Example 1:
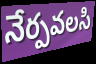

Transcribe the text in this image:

నేర్పవలసి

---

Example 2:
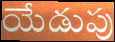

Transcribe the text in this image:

యేడుపు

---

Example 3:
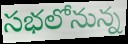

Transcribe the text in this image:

సభలోనున్న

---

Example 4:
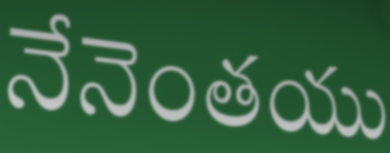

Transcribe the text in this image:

నేనెంతయు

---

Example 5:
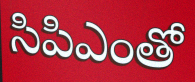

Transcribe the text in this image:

సిపిఎంతో